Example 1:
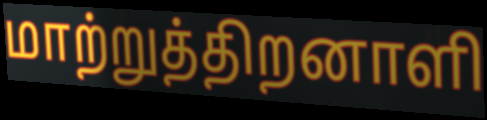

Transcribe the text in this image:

மாற்றுத்திறனாளி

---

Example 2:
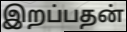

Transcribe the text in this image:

இறப்பதன்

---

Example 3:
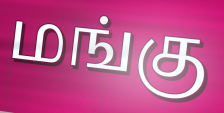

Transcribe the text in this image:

மங்கு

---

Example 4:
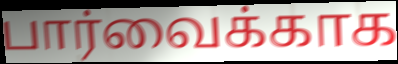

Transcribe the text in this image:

பார்வைக்காக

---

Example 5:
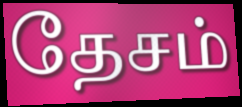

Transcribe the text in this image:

தேசம்